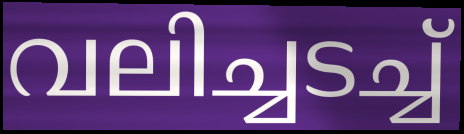
വലിച്ചടച്ച്